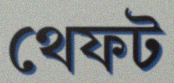
থেফট